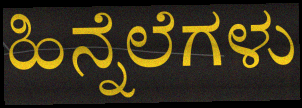
ಹಿನ್ನೆಲೆಗಳು